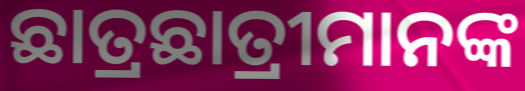
ଛାତ୍ରଛାତ୍ରୀମାନଙ୍କ